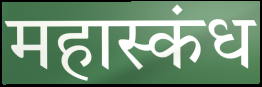
महास्कंध